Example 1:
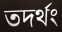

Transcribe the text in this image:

তদর্থং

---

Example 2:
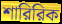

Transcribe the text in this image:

শারিরিক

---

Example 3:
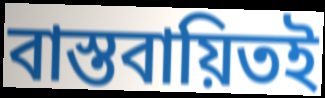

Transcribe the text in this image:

বাস্তবায়িতই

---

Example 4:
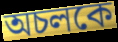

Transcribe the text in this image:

অচলকে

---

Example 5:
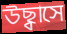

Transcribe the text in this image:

উছ্বাসে